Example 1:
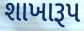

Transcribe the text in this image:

શાખારૂપ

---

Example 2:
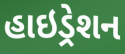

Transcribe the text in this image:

હાઇડ્રેશન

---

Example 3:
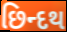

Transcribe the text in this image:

છિન્દથ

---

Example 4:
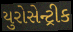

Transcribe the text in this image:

યુરોસેન્ટ્રીક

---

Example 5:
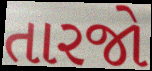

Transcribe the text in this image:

તારજો